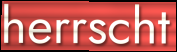
herrscht